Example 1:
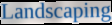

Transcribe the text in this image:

Landscaping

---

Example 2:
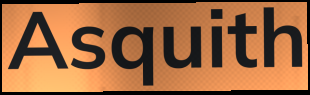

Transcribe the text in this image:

Asquith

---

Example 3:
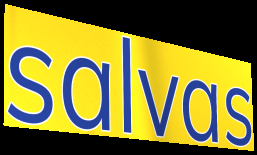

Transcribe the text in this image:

salvas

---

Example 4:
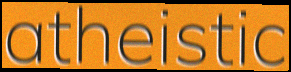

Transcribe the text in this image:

atheistic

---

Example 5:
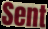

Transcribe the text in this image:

Sent